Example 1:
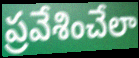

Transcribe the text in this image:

ప్రవేశించేలా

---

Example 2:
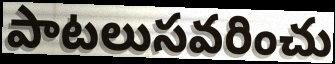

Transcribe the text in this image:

పాటలుసవరించు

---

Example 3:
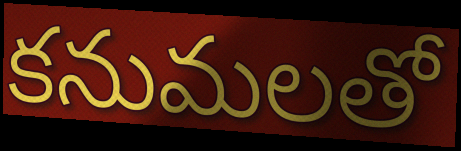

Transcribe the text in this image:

కనుమలతో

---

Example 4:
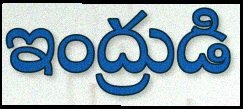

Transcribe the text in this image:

ఇంద్రుడి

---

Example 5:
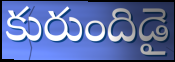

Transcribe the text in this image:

కురుందిడై